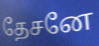
தேசனே